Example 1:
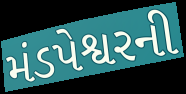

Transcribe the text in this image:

મંડપેશ્વરની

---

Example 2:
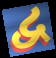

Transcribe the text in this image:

દ્વ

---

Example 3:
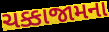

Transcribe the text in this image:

ચક્કાજામના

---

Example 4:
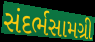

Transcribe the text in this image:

સંદર્ભસામગ્રી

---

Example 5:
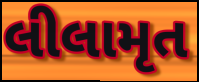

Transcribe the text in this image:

લીલામૃત